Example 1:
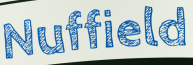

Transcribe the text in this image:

Nuffield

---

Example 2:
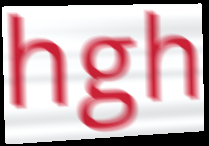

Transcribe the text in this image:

hgh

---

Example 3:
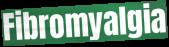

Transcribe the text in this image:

Fibromyalgia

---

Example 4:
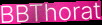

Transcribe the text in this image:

BBThorat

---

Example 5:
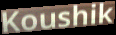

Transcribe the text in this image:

Koushik